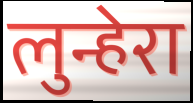
लुन्हेरा